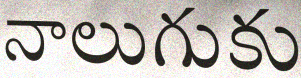
నాలుగుకు